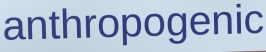
anthropogenic